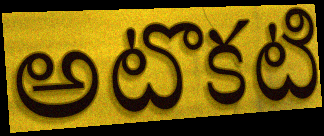
అటొకటి